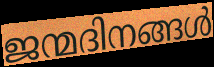
ജന്മദിനങ്ങൾ